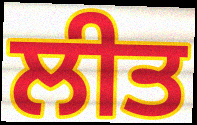
ਲੀਤ